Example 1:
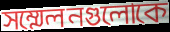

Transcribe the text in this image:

সম্মেলনগুলোকে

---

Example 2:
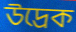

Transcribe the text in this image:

উদ্রেক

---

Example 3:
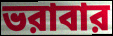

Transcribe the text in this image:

ভরাবার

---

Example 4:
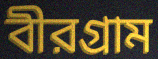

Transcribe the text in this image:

বীরগ্রাম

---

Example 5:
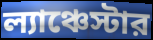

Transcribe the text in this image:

ল্যাঞ্চেস্টার